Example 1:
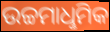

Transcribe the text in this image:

ଉଚ୍ଚମାଧୢମିକ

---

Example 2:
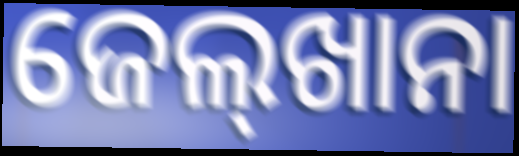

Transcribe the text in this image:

ଜେଲ୍‌ଖାନା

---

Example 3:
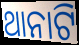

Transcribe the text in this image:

ଥାନାଟି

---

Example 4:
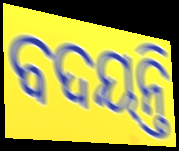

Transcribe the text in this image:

ବଦୟନ୍ତି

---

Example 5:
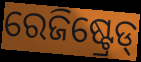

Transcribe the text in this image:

ରେଜିଷ୍ଟ୍ରେଡ୍